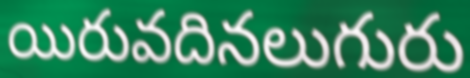
యిరువదినలుగురు